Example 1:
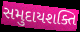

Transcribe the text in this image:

સમુદાયશક્તિ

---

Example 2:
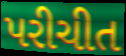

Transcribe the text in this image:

પરીચીત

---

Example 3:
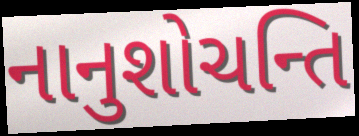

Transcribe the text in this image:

નાનુશોચન્તિ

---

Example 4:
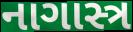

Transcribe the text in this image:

નાગાસ્ત્ર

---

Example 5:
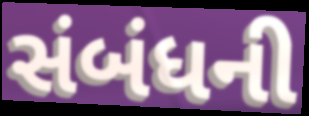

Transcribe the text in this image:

સંબંધની